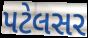
પટેલસર